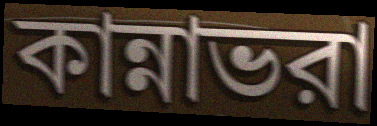
কান্নাভরা